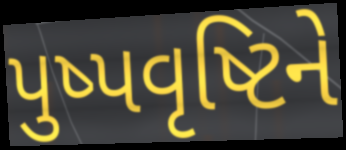
પુષ્પવૃષ્ટિને